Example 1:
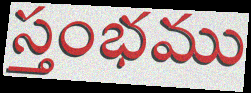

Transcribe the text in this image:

స్తంభము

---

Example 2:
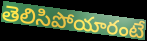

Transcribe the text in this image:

తెలిసిపోయారంటే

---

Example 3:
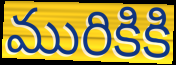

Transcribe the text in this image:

మురికికి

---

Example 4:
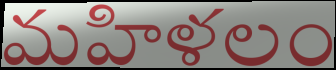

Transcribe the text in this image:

మహిళలం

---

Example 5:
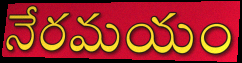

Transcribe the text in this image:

నేరమయం